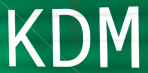
KDM